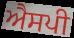
ਐਸਪੀ